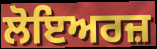
ਲੋਇਅਰਜ਼